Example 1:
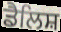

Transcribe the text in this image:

ਡੈਲਿਸ਼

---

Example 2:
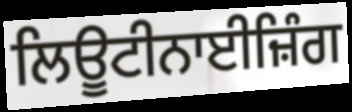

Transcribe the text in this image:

ਲਿਊਟੀਨਾਈਜ਼ਿੰਗ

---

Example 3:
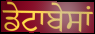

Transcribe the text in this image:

ਡੇਟਾਬੇਸਾਂ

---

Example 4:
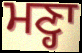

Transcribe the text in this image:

ਮਣ੍ਹਾ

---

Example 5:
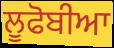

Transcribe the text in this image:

ਲੂਫੋਬੀਆ